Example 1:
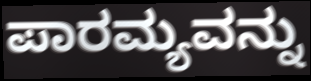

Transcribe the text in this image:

ಪಾರಮ್ಯವನ್ನು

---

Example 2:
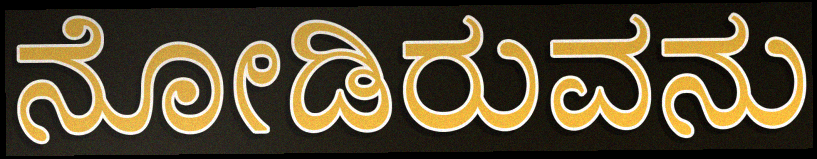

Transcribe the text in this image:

ನೋಡಿರುವನು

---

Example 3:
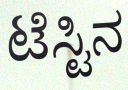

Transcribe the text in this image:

ಟೆಸ್ಟಿನ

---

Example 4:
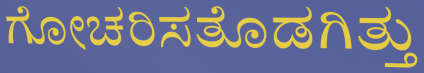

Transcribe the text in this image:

ಗೋಚರಿಸತೊಡಗಿತ್ತು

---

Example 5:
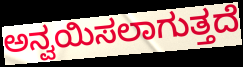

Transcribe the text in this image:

ಅನ್ವಯಿಸಲಾಗುತ್ತದೆ